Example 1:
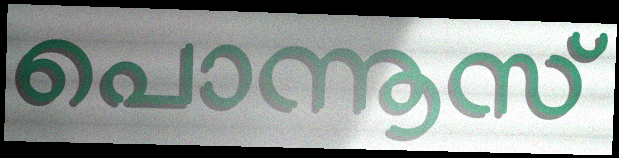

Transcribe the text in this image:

പൊന്നൂസ്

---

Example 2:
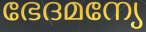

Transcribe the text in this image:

ഭേദമന്യേ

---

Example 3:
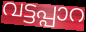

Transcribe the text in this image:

വട്ടപ്പാറ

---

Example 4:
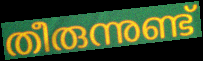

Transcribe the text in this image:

തീരുന്നുണ്ട്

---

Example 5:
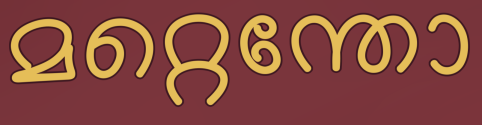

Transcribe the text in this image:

മറ്റെന്തോ